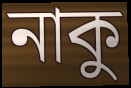
নাকু